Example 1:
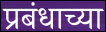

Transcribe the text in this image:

प्रबंधाच्या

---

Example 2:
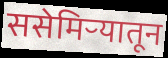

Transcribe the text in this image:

ससेमिऱ्यातून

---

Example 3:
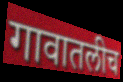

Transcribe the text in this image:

गावातलीच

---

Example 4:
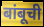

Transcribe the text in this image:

बांबूची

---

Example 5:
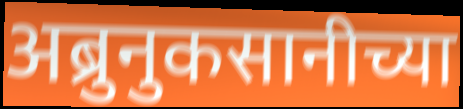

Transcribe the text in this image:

अब्रुनुकसानीच्या